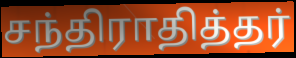
சந்திராதித்தர்